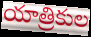
యాత్రికుల